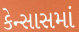
કેન્સાસમાં